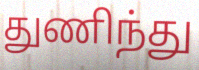
துணிந்து